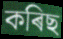
কৰিছ